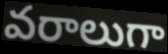
వరాలుగా